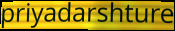
priyadarshture